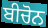
ਬੀਚੋਨ